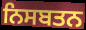
ਨਿਸਬਤਨ